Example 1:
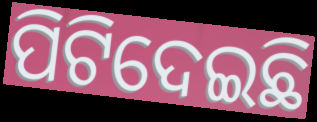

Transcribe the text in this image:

ପିଟିଦେଇଛି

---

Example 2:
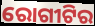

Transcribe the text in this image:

ରୋଗୀଟିର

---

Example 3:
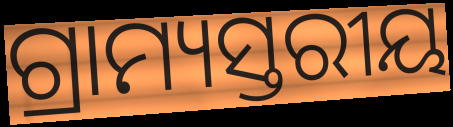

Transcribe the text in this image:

ଗ୍ରାମ୍ୟସ୍ତରୀୟ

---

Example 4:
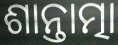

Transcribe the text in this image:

ଶାନ୍ତାତ୍ମା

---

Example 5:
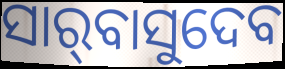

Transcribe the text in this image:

ସାର୍‌ବାସୁଦେବ